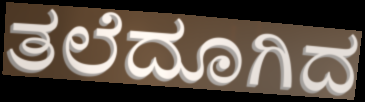
ತಲೆದೂಗಿದ